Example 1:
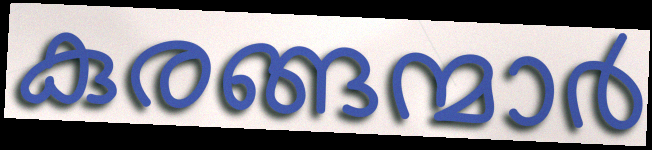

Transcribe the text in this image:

കുരങ്ങന്മാർ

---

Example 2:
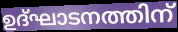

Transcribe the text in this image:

ഉദ്ഘാടനത്തിന്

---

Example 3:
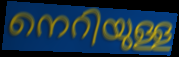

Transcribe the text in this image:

നെറിയുള്ള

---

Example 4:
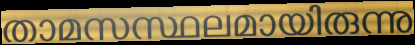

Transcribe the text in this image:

താമസസ്ഥലമായിരുന്നു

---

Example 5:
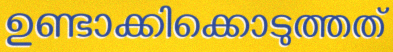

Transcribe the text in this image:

ഉണ്ടാക്കിക്കൊടുത്തത്